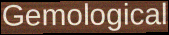
Gemological